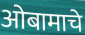
ओबामाचे